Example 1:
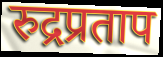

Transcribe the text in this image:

रुद्रप्रताप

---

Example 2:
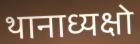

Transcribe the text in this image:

थानाध्यक्षो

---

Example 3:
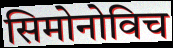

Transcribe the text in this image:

सिमोनोविच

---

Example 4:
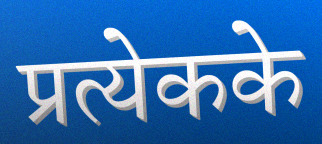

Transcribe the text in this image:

प्रत्येकके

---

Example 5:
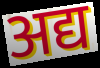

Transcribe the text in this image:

अद्य